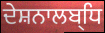
ਦੇਸ਼ਨਾਲਬ੍ਧਿ